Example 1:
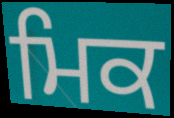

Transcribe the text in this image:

ਮਿਕ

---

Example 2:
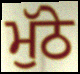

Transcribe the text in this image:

ਮੁੱਠੇ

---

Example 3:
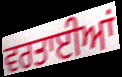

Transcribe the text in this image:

ਵਰਤਾਈਆਂ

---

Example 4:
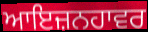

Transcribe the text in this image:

ਆਇਜ਼ਨਹਾਵਰ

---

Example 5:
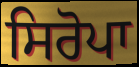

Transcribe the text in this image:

ਸਿਰੋਪਾ